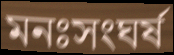
মনঃসংঘর্ষ